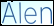
Alen